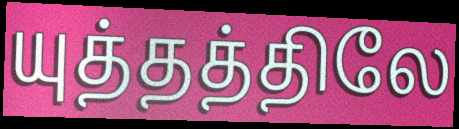
யுத்தத்திலே